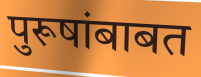
पुरूषांबाबत